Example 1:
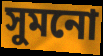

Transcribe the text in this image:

সুমনো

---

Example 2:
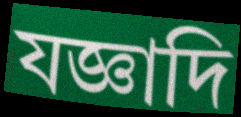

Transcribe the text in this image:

যজ্ঞাদি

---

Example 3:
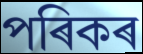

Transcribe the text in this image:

পৰিকৰ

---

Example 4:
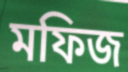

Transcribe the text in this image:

মফিজ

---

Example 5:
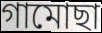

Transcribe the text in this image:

গামোছা